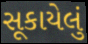
સૂકાયેલું